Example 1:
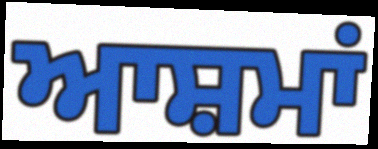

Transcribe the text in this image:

ਆਸ਼ਮਾਂ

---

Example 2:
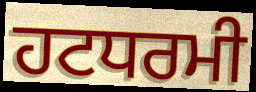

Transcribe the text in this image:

ਹਟਧਰਮੀ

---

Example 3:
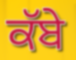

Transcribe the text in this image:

ਕੱਬੇ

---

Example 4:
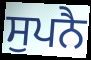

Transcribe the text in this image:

ਸੁਪਨੈ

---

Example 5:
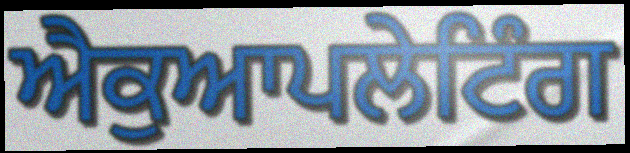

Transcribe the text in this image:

ਐਕੁਆਪਲੇਟਿੰਗ